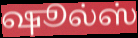
ஷூல்ஸ்